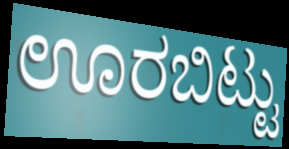
ಊರಬಿಟ್ಟು